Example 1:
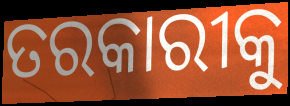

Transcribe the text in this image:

ତରକାରୀକୁ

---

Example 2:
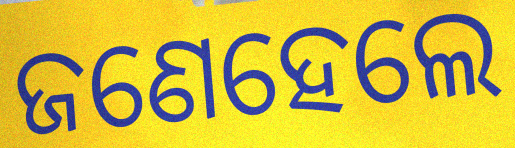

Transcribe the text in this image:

ଜଣେହେଲେ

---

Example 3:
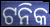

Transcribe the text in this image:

ଟନିକ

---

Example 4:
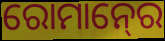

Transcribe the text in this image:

ରୋମାନ୍‍ରେ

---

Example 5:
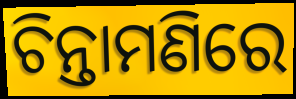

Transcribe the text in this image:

ଚିନ୍ତାମଣିରେ